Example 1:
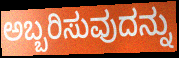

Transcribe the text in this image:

ಅಬ್ಬರಿಸುವುದನ್ನು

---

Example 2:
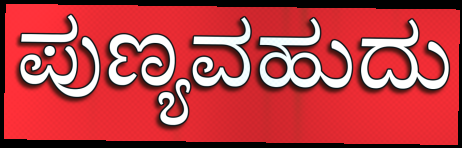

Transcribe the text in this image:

ಪುಣ್ಯವಹುದು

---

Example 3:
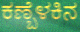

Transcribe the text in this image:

ಕಣ್ಬೆಳಕಿನ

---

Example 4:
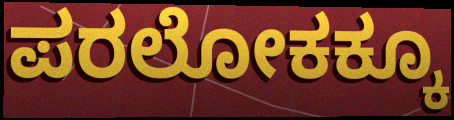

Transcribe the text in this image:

ಪರಲೋಕಕ್ಕೂ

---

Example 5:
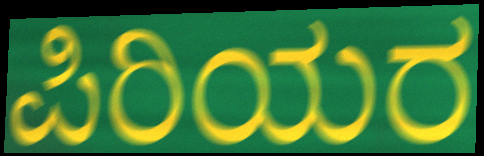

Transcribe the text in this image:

ಪಿರಿಯರ